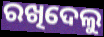
ରଖିଦେଲୁ